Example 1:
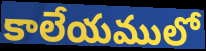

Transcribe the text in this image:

కాలేయములో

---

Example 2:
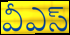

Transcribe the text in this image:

వీఎస్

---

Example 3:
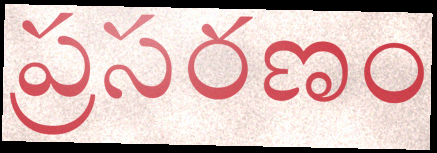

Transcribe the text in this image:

ప్రసరణం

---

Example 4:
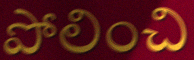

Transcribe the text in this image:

పోలించి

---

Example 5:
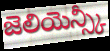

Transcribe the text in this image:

జెలియెన్స్కీ